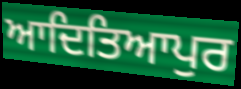
ਆਦਿਤਿਆਪੁਰ